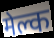
मेल्क